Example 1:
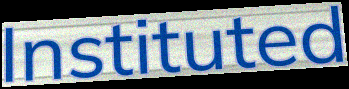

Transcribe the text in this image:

Instituted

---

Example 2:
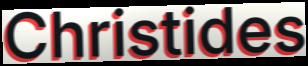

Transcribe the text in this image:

Christides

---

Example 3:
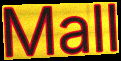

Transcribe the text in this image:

Mall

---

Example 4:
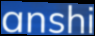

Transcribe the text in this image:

anshi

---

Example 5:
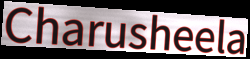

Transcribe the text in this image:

Charusheela